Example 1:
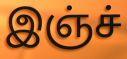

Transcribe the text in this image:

இஞ்ச்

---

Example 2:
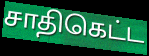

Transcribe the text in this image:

சாதிகெட்ட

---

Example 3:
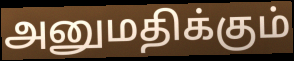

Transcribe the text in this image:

அனுமதிக்கும்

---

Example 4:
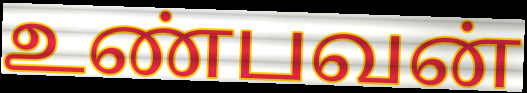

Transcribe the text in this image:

உண்பவன்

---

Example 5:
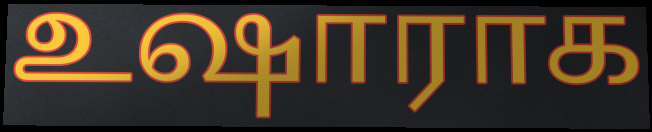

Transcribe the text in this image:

உஷாராக